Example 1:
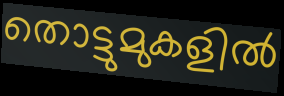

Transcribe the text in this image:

തൊട്ടുമുകളിൽ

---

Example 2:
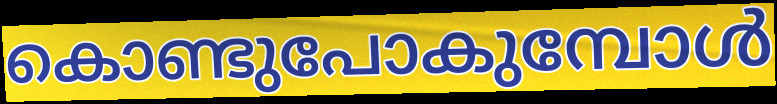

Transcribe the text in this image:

കൊണ്ടുപോകുമ്പോൾ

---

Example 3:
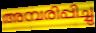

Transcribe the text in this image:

അമ്പരിപ്പിച്ചു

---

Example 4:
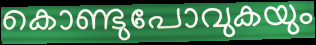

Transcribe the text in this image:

കൊണ്ടുപോവുകയും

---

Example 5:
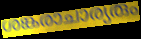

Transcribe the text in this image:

ശങ്കരാചാര്യരും